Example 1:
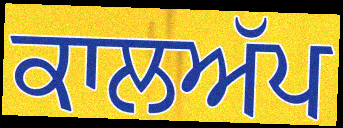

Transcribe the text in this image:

ਕਾਲਅੱਪ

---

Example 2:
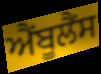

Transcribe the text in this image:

ਐੰਬੂਲੈੰਸ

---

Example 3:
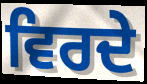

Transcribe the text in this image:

ਵਿਰਦੇ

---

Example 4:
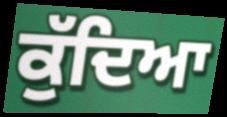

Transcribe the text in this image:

ਕੁੱਦਿਆ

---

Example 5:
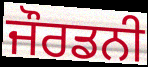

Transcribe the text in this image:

ਜੌਰਡਨੀ